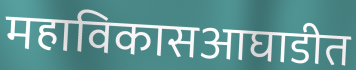
महाविकासआघाडीत